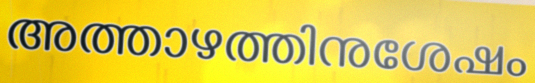
അത്താഴത്തിനുശേഷം